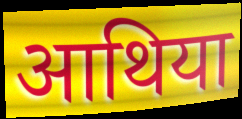
आथिया